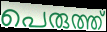
പെരുത്ത്